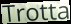
Trotta